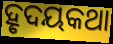
ହୃଦୟକଥା